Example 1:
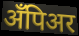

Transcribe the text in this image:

अँपिअर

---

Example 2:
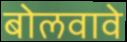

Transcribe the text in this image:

बोलवावे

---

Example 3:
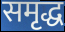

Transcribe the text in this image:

समृद्ध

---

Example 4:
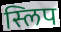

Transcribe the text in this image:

स्लिप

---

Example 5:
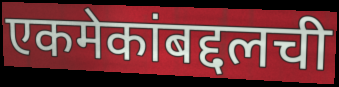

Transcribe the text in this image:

एकमेकांबद्दलची